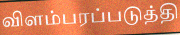
விளம்பரப்படுத்தி